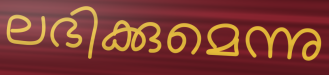
ലഭിക്കുമെന്നു